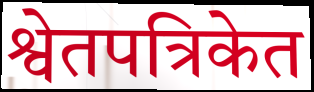
श्वेतपत्रिकेत